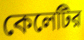
কেলেটির